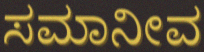
ಸಮಾನೀವ